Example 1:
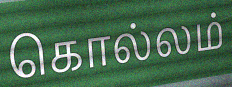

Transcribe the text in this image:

கொல்லம்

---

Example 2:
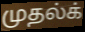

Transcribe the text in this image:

முதல்க்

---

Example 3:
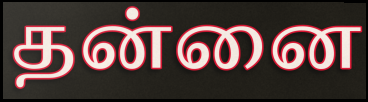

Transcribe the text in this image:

தன்னை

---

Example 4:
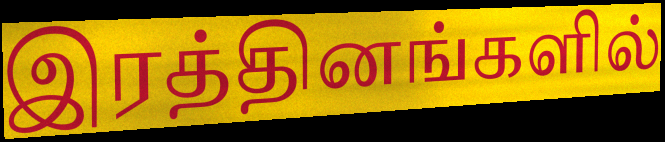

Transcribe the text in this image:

இரத்தினங்களில்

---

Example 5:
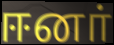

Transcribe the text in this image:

ஈனர்